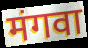
मंगवा